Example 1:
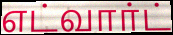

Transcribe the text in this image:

எட்வார்ட்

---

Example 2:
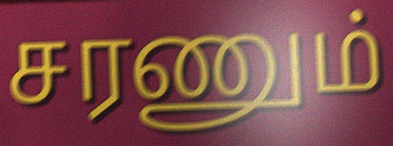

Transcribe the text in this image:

சரணும்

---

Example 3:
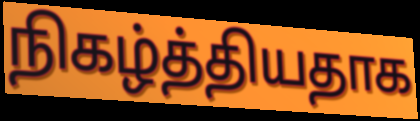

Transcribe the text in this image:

நிகழ்த்தியதாக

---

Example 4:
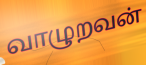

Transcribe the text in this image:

வாழுறவன்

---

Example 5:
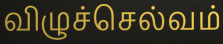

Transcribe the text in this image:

விழுச்செல்வம்